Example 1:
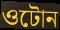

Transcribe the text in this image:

ওটোন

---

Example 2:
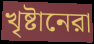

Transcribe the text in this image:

খৃষ্টানেরা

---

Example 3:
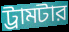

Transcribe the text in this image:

ট্রামটার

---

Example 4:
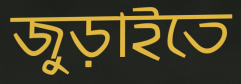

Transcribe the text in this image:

জুড়াইতে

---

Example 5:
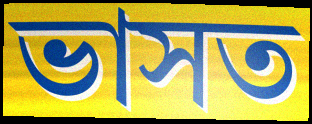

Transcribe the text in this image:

ভাসত